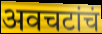
अवचटांचं